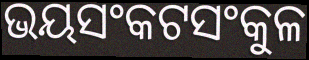
ଭୟସଂକଟସଂକୁଳ